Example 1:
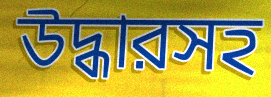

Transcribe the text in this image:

উদ্ধারসহ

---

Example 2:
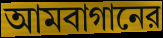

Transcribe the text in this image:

আমবাগানের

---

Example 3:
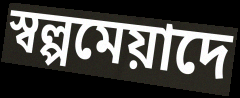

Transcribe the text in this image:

স্বল্পমেয়াদে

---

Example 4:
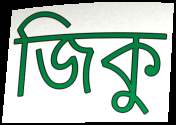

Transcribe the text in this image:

জিকু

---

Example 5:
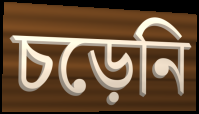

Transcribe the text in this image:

চড়েনি